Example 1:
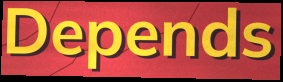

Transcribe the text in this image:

Depends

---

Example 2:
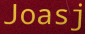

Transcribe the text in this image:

Joasj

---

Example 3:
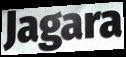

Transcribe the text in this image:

Jagara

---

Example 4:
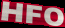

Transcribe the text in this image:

HFO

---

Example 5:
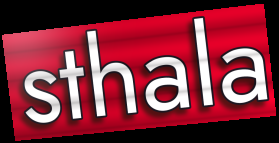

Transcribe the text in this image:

sthala